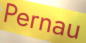
Pernau